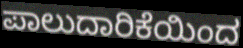
ಪಾಲುದಾರಿಕೆಯಿಂದ